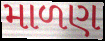
માળણ